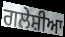
ਗਲੇਸ਼ੀਆ